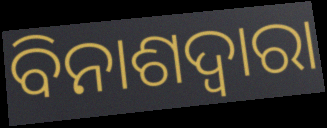
ବିନାଶଦ୍ଵାରା